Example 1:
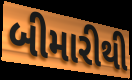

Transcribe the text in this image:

બીમારીથી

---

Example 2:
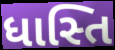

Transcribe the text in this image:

ધાસ્તિ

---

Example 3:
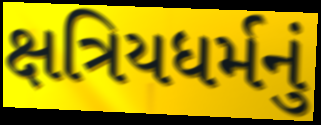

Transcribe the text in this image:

ક્ષત્રિયધર્મનું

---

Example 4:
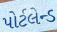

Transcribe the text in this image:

પોર્ટલેન્ડ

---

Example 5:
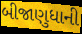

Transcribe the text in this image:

બીજાણુધાની